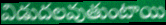
విడుదలవుతుంటాయి